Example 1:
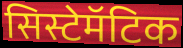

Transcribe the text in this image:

सिस्टेमॅटिक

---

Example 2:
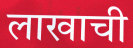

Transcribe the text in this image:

लाखाची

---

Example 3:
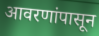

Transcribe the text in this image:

आवरणांपासून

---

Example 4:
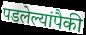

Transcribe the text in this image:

पडलेल्यांपैकी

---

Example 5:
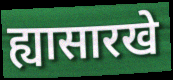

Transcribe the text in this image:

ह्यासारखे